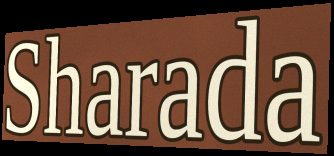
Sharada